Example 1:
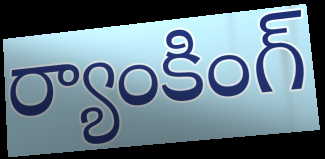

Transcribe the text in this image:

ర్యాంకింగ్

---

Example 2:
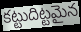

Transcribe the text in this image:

కట్టుదిట్టమైన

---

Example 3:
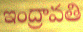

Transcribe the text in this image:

ఇంద్రావతి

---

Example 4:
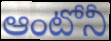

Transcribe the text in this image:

ఆంటోనీ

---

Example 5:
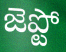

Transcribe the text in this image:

జెప్టో